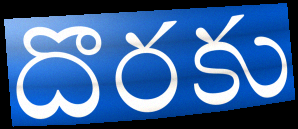
దొరకు